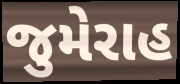
જુમેરાહ